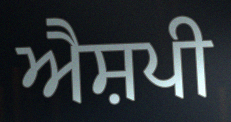
ਐਸ਼ਪੀ